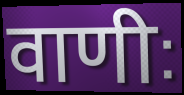
वाणीः